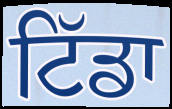
ਟਿੱਡਾ